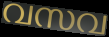
വസവ